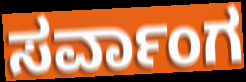
ಸರ್ವಾಂಗ